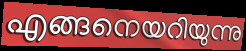
എങ്ങനെയറിയുന്നു